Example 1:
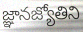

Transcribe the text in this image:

జ్ఞానజ్యోతిని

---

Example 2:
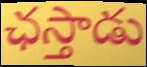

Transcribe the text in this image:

ఛస్తాడు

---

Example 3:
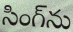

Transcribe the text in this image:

సింగ్‌ను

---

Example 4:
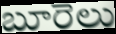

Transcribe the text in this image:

బూరెలు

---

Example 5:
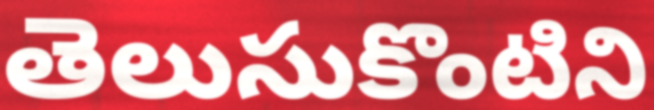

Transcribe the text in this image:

తెలుసుకొంటిని